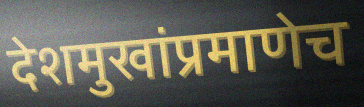
देशमुखांप्रमाणेच